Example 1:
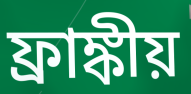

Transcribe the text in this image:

ফ্রাঙ্কীয়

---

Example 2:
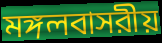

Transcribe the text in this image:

মঙ্গলবাসরীয়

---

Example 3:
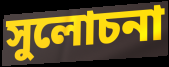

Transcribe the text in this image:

সুলোচনা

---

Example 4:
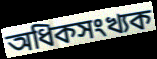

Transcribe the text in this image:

অধিকসংখ্যক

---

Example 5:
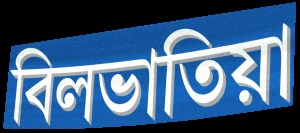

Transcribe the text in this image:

বিলভাতিয়া